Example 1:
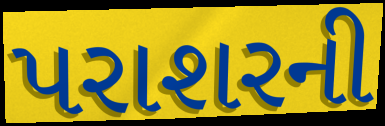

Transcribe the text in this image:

પરાશરની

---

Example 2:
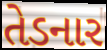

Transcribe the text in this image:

તેડનાર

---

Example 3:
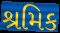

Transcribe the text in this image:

શ્રમિક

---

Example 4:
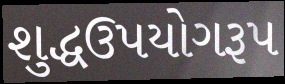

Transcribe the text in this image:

શુદ્ધઉપયોગરૂપ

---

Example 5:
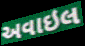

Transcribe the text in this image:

અવાઇલ